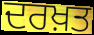
ਦਰਖ਼ਤ